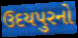
ઉદયપુરનો